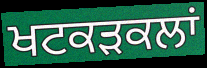
ਖਟਕੜਕਲਾਂ